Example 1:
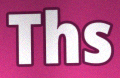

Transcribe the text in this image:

Ths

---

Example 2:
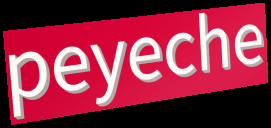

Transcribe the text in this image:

peyeche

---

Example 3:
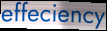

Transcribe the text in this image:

effeciency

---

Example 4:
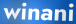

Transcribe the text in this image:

winani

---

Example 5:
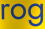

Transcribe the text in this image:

rog